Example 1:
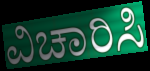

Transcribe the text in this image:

ವಿಚಾರಿಸಿ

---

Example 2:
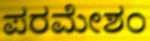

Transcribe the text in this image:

ಪರಮೇಶಂ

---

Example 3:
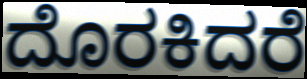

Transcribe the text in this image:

ದೊರಕಿದರೆ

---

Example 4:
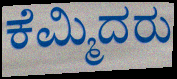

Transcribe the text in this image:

ಕೆಮ್ಮಿದರು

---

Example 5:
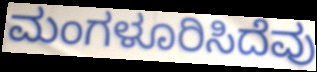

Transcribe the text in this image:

ಮಂಗಳೂರಿಸಿದೆವು